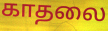
காதலை